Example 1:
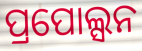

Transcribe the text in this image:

ପ୍ରପୋଲ୍ସନ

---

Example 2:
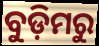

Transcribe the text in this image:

ବୁଡ଼ିମରୁ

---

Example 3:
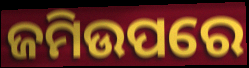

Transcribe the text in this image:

ଜମିଉପରେ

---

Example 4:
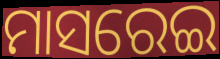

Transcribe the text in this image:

ମାସରେଇ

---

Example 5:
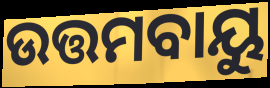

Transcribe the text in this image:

ଉତ୍ତମବାୟୁ